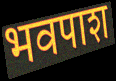
भवपाश